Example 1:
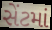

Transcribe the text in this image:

સેંટમાં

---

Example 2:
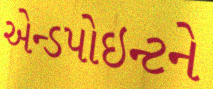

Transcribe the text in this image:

એન્ડપોઇન્ટને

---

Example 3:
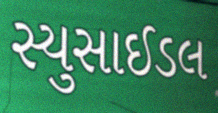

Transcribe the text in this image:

સ્યુસાઈડલ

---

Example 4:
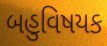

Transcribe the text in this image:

બહુવિષયક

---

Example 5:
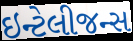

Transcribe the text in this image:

ઇન્ટેલીજન્સ